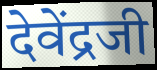
देवेंद्रजी